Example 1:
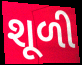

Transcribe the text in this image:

શૂળી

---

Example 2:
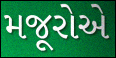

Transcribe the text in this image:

મજૂરોએ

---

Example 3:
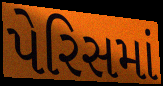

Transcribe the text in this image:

પેરિસમાં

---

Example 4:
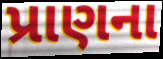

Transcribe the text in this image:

પ્રાણના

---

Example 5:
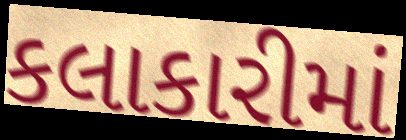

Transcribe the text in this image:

કલાકારીમાં